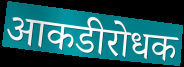
आकडीरोधक